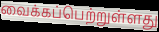
வைக்கப்பெற்றுள்ளது